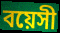
বয়েসী